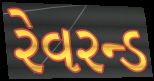
રેવરન્ડ